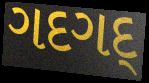
ગદગદ્